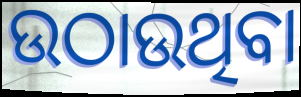
ଉଠାଉଥିବା